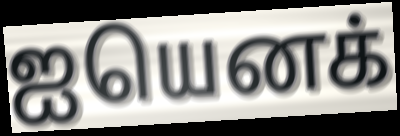
ஐயெனக்